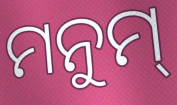
ମନୁମ୍